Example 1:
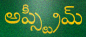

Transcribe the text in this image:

అప్స్ట్రీమ్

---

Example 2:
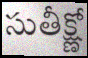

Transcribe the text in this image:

సుతీక్ష్ణో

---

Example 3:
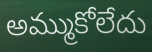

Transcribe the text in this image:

అమ్ముకోలేదు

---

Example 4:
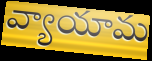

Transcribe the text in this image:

వ్యాయామ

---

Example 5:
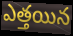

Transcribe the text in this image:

ఎత్తయిన